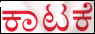
ಕಾಟಕೆ